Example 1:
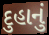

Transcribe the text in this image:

દુહાનું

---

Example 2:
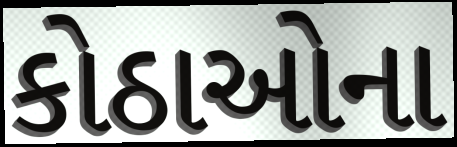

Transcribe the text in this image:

કોઠાઓના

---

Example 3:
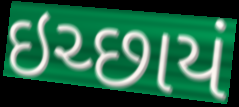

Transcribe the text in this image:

ઇચ્છાયં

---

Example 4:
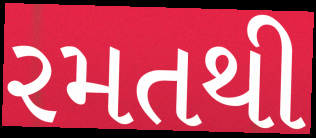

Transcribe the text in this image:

રમતથી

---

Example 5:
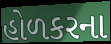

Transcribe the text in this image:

હોળકરના